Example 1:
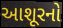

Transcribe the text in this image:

આશૂરનો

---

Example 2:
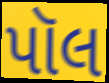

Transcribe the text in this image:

પૉલ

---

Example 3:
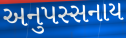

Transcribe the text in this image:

અનુપસ્સનાય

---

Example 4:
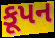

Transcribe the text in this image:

કૂપન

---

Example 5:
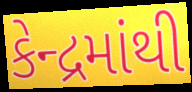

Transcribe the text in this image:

કેન્દ્રમાંથી